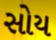
સોય